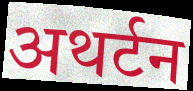
अथर्टन